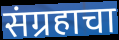
संग्रहाचा